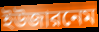
ইউজারনেম